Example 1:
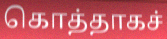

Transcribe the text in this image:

கொத்தாகச்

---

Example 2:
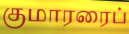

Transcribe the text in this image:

குமாரரைப்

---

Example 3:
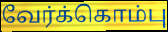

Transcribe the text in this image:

வேர்க்கொம்பு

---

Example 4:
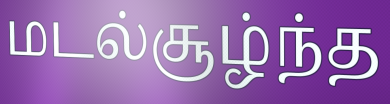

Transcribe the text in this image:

மடல்சூழ்ந்த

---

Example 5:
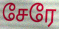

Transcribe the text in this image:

சேரே